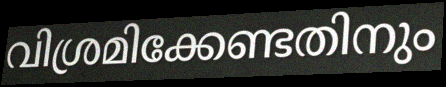
വിശ്രമിക്കേണ്ടതിനും